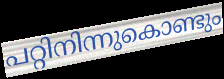
പറ്റിനിന്നുകൊണ്ടും